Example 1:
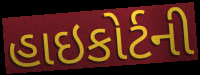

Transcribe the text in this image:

હાઇકોર્ટની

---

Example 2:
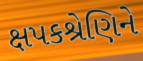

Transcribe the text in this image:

ક્ષપકશ્રેણિને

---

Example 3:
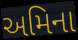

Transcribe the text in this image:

અમિના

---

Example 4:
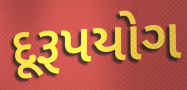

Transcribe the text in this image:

દૂરૂપયોગ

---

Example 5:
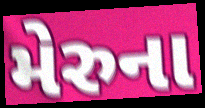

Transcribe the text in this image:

મેરુના